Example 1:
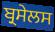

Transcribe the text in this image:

ਬ੍ਰਸੇਲਸ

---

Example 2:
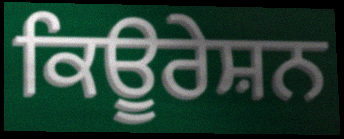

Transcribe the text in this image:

ਕਿਊਰੇਸ਼ਨ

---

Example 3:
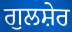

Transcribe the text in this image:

ਗੁਲਸ਼ੇਰ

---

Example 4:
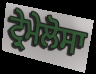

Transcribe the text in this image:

ਟ੍ਰੇਮੇਲੋਸਾ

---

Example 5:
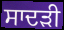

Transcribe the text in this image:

ਸਾਦੜੀ